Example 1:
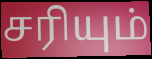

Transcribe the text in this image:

சரியும்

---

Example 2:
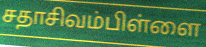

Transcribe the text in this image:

சதாசிவம்பிள்ளை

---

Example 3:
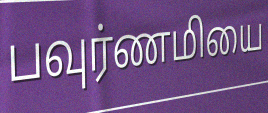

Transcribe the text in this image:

பவுர்ணமியை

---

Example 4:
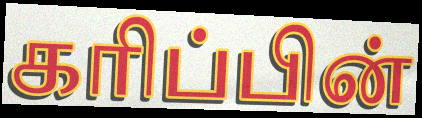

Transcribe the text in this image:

கரிப்பின்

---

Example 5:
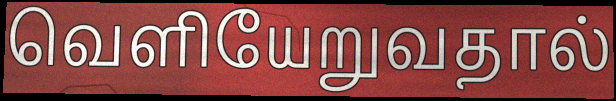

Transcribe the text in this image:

வெளியேறுவதால்